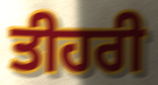
ਤੀਹਰੀ